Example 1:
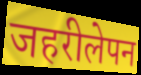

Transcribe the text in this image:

जहरीलेपन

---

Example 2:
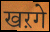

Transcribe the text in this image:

खऱगे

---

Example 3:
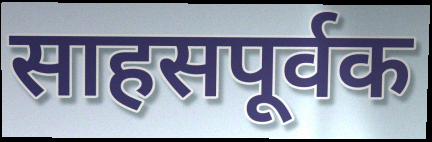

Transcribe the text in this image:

साहसपूर्वक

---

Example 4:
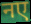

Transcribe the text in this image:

नए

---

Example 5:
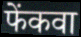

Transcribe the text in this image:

फेंकवा